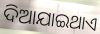
ଦିଆଯାଇଥାଏ